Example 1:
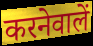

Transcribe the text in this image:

करनेवालें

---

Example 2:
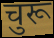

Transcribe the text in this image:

चुरू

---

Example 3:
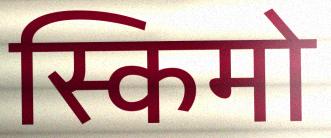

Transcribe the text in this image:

स्किमो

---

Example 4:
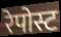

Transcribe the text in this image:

रेपोस्ट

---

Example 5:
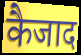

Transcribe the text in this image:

कैजाद